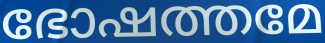
ഭോഷത്തമേ